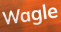
Wagle